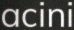
acini